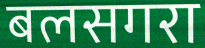
बलसगरा